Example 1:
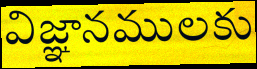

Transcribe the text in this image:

విజ్ఞానములకు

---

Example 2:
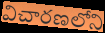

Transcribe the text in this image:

విచారణలోని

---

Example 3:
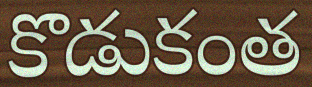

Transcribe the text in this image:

కొడుకంత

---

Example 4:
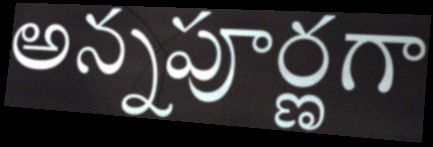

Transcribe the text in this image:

అన్నపూర్ణగా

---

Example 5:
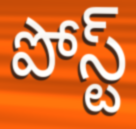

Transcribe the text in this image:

పోస్ట్